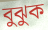
বুঝুক